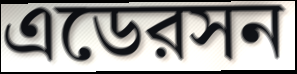
এডেরসন